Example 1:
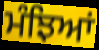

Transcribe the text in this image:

ਮੰਝਿਆਂ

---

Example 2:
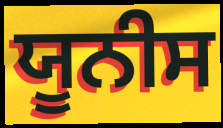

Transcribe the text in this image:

ਯੂਨੀਸ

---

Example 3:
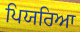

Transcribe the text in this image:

ਪਿਯਰਿਆ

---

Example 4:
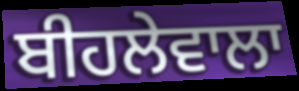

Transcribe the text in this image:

ਬੀਹਲੇਵਾਲਾ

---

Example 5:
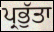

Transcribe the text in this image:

ਪ੍ਰਭੁੱਤਾ